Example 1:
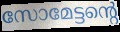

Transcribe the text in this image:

സോമേട്ടന്റെ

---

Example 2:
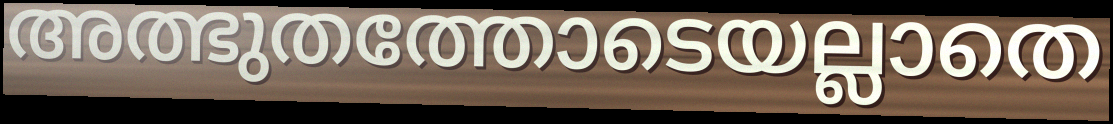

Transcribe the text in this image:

അത്ഭുതത്തോടെയല്ലാതെ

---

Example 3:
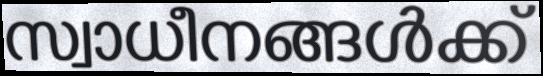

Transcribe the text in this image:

സ്വാധീനങ്ങൾക്ക്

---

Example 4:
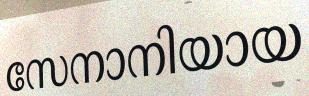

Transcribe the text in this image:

സേനാനിയായ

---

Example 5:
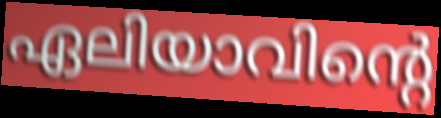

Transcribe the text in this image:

ഏലിയാവിന്റെ